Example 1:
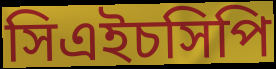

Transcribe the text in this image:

সিএইচসিপি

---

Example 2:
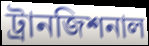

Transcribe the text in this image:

ট্রানজিশনাল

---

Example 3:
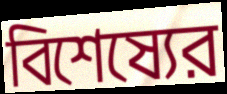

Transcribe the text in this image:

বিশেষ্যের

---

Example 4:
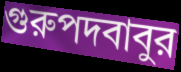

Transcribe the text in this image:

গুরুপদবাবুর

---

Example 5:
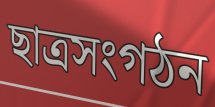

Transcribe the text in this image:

ছাত্রসংগঠন